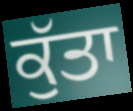
ਕੁੱਤਾ